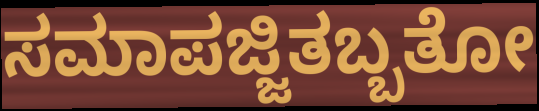
ಸಮಾಪಜ್ಜಿತಬ್ಬತೋ